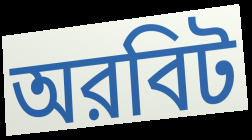
অরবিট